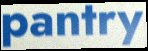
pantry